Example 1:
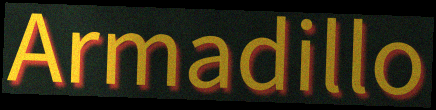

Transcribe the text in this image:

Armadillo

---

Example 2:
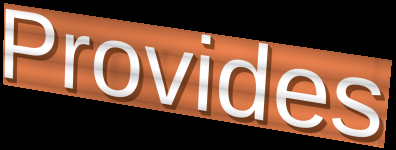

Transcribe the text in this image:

Provides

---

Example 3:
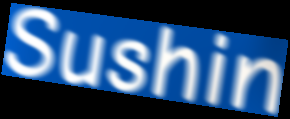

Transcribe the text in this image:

Sushin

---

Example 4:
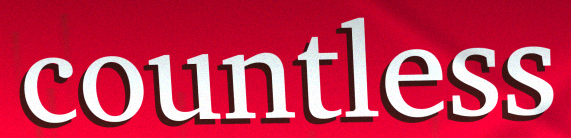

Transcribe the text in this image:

countless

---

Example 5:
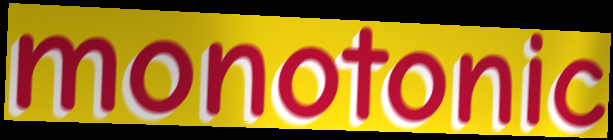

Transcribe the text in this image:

monotonic